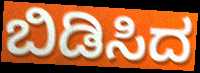
ಬಿಡಿಸಿದ